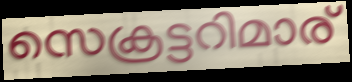
സെക്രട്ടറിമാര്